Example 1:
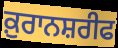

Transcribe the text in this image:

ਕ਼ੁਰਾਨਸ਼ਰੀਫ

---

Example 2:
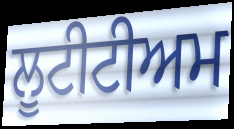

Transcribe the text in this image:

ਲੂਟੀਟੀਅਮ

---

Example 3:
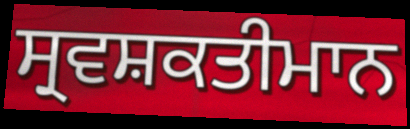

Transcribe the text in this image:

ਸ੍ਰਵਸ਼ਕਤੀਮਾਨ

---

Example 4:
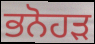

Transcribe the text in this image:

ਭਨੋਹੜ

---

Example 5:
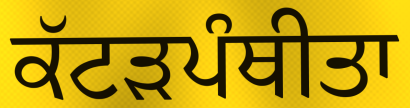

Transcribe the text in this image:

ਕੱਟੜਪੰਥੀਤਾ